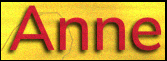
Anne